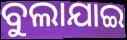
ବୁଲାଯାଇ